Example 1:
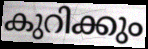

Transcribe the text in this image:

കുറിക്കും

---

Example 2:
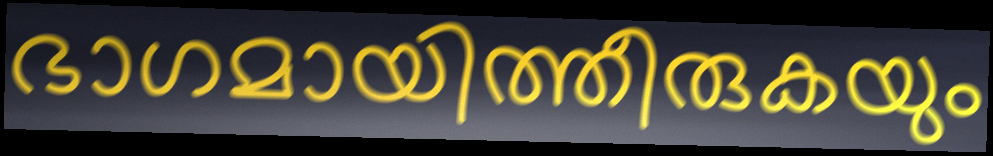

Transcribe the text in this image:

ഭാഗമായിത്തീരുകയും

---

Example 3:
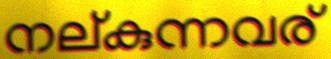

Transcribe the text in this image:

നല്കുന്നവര്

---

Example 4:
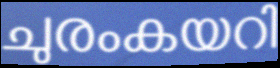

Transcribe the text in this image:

ചുരംകയറി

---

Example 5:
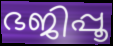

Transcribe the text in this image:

ഭജിപ്പൂ